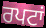
ਰਪਟਾਂ